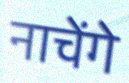
नाचेंगे